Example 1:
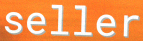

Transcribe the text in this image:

seller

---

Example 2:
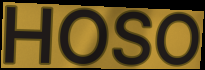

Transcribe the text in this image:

HOSO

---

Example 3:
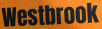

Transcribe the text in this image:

Westbrook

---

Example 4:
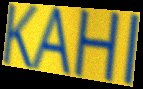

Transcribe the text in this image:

KAHI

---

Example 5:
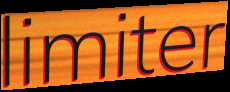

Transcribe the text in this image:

limiter